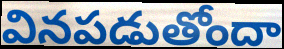
వినపడుతోందా